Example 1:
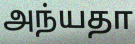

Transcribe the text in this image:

அந்யதா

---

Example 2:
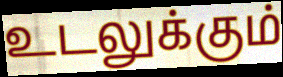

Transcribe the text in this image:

உடலுக்கும்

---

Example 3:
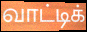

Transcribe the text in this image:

வாட்டிக்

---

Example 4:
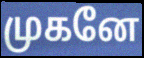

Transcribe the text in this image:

முகனே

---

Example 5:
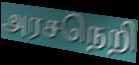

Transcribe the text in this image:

அரசநெறி